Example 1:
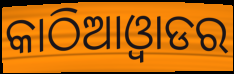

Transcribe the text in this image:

କାଠିଆଓ୍ୱାଡର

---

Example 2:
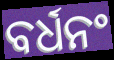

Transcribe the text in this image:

ବର୍ଧନଂ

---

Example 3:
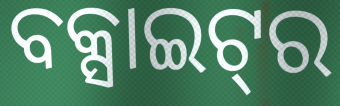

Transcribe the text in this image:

ବକ୍ସାଇଟ୍‌ର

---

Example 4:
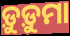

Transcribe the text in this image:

ଡ଼ୁଡ଼ୁମା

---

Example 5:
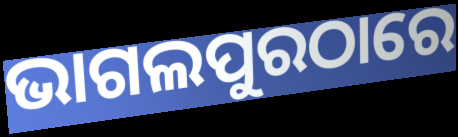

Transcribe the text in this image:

ଭାଗଲପୁରଠାରେ